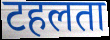
टहलता